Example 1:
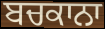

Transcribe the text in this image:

ਬਚਕਾਨਾ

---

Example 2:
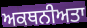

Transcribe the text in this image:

ਅਕਥਨੀਅਤਾ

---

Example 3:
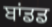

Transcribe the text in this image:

ਬਾਂਡਡ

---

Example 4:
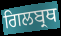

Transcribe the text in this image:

ਗਿਲਬ੍ਰਥ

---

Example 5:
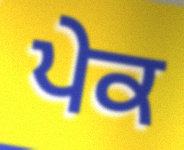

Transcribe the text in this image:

ਪੇਕ